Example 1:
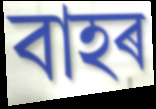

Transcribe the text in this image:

বাহৰ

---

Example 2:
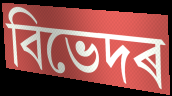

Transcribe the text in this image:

বিভেদৰ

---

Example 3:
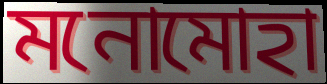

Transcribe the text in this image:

মনোমোহা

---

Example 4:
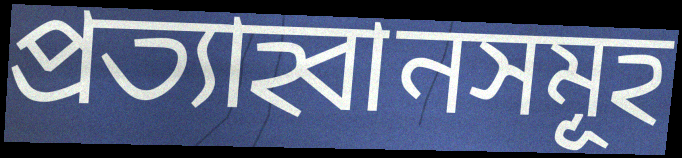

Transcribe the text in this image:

প্ৰত্যাহ্বানসমূহ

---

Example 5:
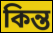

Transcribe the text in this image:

কিন্ত